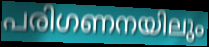
പരിഗണനയിലും